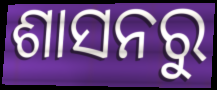
ଶାସନରୁ